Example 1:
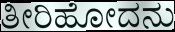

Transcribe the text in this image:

ತೀರಿಹೋದನು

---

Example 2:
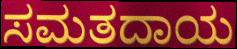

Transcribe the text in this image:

ಸಮತದಾಯ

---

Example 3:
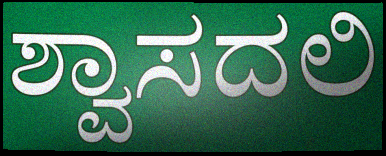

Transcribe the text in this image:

ಶ್ವಾಸದಲಿ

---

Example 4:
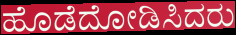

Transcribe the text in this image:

ಹೊಡೆದೋಡಿಸಿದರು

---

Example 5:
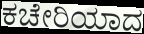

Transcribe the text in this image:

ಕಚೇರಿಯಾದ